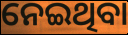
ନେଇଥିବା